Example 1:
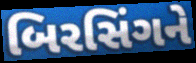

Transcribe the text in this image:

બિરસિંગને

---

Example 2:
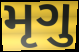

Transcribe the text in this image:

મૃગુ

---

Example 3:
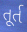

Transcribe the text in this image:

તૂર્ત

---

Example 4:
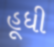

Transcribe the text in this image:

હૂધી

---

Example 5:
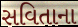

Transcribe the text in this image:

સવિતાના